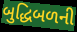
બુદ્ધિબળની